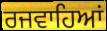
ਰਜਵਾਹਿਆਂ